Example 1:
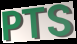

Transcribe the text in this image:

PTS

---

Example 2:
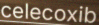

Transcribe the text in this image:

celecoxib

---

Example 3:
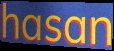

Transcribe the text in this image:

hasan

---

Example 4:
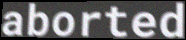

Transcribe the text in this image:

aborted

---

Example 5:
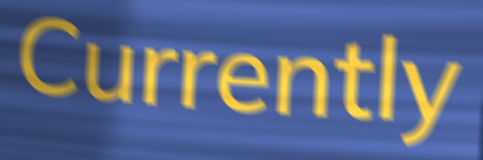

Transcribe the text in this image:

Currently